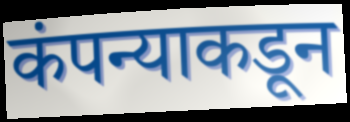
कंपन्याकडून